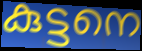
കുട്ടനെ